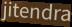
jitendra